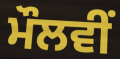
ਮੌਲਵੀਂ